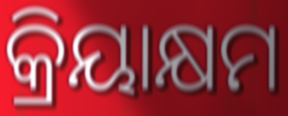
କ୍ରିୟାକ୍ଷମ